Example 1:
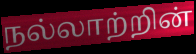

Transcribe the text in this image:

நல்லாற்றின்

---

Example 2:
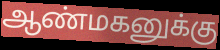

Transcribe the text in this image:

ஆண்மகனுக்கு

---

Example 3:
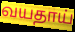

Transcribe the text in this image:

வயதாய்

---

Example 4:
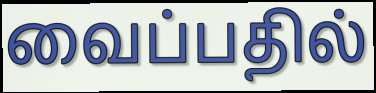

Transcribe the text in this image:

வைப்பதில்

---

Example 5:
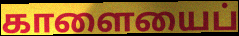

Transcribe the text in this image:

காளையைப்